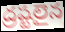
ద్రష్టలైన